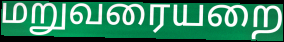
மறுவரையறை